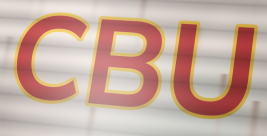
CBU